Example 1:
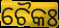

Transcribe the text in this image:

ଚୈକଃ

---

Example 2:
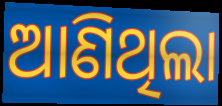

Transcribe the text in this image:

ଆଣିଥିଲା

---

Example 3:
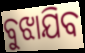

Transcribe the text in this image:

ବୁଝାଯିବ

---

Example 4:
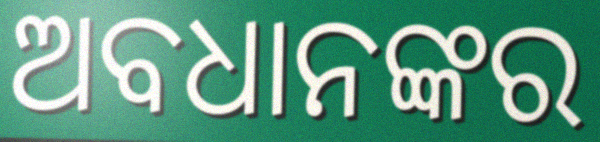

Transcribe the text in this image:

ଅବଧାନଙ୍କର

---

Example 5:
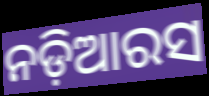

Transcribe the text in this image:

ନଡ଼ିଆରସ